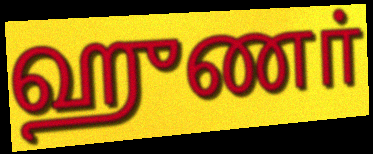
ஹுணர்